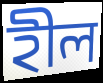
হীল